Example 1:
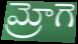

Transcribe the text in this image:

మ్రోగె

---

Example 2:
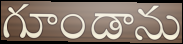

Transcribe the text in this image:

గూండాను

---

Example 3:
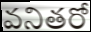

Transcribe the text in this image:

వనితరో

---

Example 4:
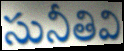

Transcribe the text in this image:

సునీతివి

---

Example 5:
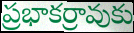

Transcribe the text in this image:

ప్రభాకర్రావుకు